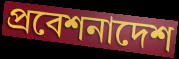
প্রবেশনাদেশ